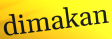
dimakan